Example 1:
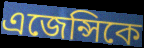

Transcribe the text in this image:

এজেন্সিকে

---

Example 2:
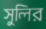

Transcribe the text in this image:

সুলির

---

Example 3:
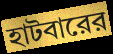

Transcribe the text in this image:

হাটবারের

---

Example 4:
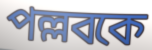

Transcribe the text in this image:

পল্লবকে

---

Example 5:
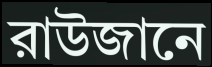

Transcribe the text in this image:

রাউজানে